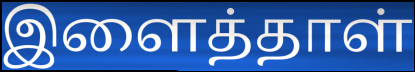
இளைத்தாள்